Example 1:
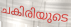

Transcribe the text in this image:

ചകിരിയുടെ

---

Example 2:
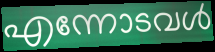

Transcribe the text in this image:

എന്നോടവൾ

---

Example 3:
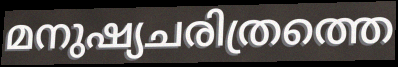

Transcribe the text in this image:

മനുഷ്യചരിത്രത്തെ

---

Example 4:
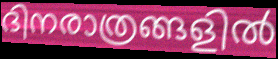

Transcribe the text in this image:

ദിനരാത്രങ്ങളിൽ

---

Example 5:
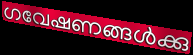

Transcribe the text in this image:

ഗവേഷണങ്ങൾക്കു